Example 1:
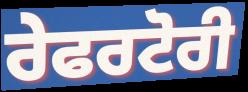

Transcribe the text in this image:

ਰੇਫਰਟੋਰੀ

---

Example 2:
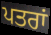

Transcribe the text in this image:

ਪਤਰਾਂ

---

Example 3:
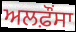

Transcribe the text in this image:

ਅਲਫ਼ੌਂਸਾ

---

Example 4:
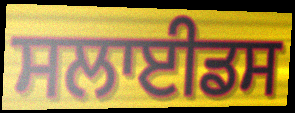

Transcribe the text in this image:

ਸਲਾਈਡਸ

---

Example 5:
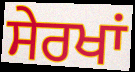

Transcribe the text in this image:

ਸੇਰਖਾਂ